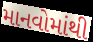
માનવોમાંથી